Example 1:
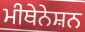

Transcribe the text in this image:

ਮੀਥੇਨੇਸ਼ਨ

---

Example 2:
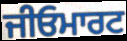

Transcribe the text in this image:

ਜੀਓਮਾਰਟ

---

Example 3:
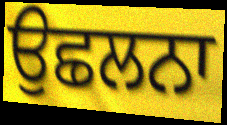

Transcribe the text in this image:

ਉਛਲਨਾ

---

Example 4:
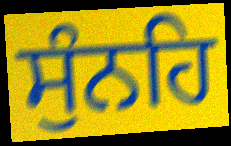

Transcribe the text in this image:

ਸੁੰਨਹਿ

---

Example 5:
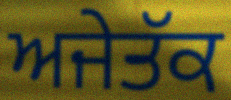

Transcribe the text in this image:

ਅਜੇਤੱਕ